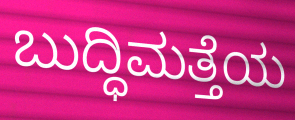
ಬುದ್ಧಿಮತ್ತೆಯ